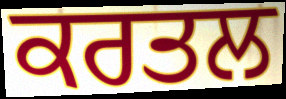
ਕਰਤਲ